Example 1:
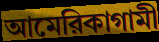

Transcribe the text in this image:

আমেরিকাগামী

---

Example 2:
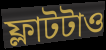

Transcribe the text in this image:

ফ্লাটটাও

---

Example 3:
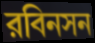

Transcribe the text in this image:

রবিনসন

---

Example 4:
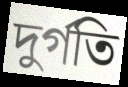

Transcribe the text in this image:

দুর্গতি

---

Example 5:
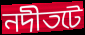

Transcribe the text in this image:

নদীতটে